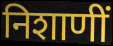
निशाणीं